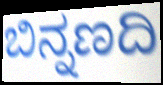
ಬಿನ್ನಣದಿ